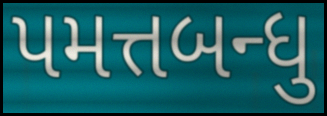
પમત્તબન્ધુ